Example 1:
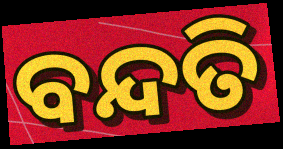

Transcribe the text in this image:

ବନ୍ଦତି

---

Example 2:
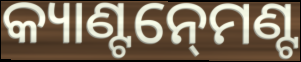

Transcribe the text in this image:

କ୍ୟାଣ୍ଟନ୍‍ମେଣ୍ଟ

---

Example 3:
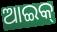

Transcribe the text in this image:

ଆଇକ୍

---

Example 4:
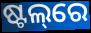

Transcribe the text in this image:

ଷ୍ଟଲ୍‌ରେ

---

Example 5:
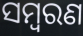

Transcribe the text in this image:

ସମ୍ୱରଣ